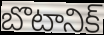
బొటానిక్